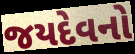
જયદેવનો